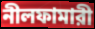
নীলফামারী